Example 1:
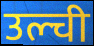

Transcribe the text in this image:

उल्ची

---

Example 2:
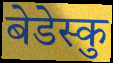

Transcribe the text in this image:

बेडेस्कु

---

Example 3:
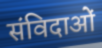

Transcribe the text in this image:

संविदाओं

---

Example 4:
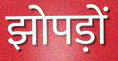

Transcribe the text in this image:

झोपड़ों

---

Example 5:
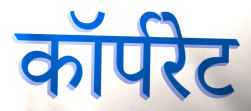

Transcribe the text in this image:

कॉर्परेट